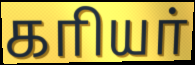
கரியர்